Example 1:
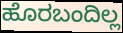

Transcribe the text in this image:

ಹೊರಬಂದಿಲ್ಲ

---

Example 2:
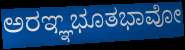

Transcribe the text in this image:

ಅರಞ್ಞಭೂತಭಾವೋ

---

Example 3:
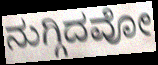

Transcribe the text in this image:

ನುಗ್ಗಿದವೋ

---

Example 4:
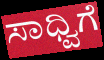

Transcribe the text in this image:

ಸಾಧ್ವಿಗೆ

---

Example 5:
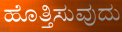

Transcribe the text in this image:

ಹೊತ್ತಿಸುವುದು